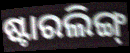
ଷ୍ଟାରଲିଙ୍ଗ୍